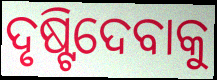
ଦୃଷ୍ଟିଦେବାକୁ